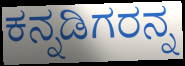
ಕನ್ನಡಿಗರನ್ನ